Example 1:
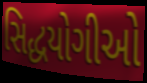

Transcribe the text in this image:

સિદ્ધયોગીઓ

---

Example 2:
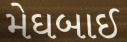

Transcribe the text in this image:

મેઘબાઈ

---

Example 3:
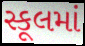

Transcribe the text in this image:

સ્કૂલમાં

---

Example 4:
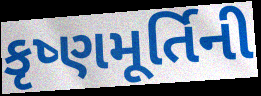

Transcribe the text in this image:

કૃષ્ણમૂર્તિની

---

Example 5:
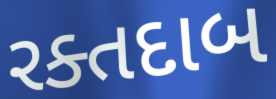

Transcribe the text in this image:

રક્તદાબ